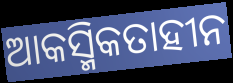
ଆକସ୍ମିକତାହୀନ